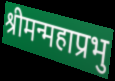
श्रीमन्महाप्रभु